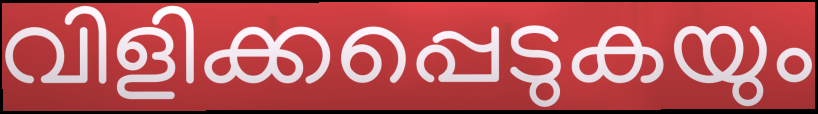
വിളിക്കപ്പെടുകയും